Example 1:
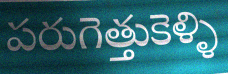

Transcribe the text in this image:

పరుగెత్తుకెళ్ళి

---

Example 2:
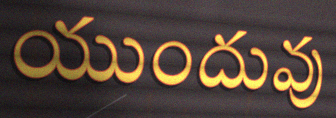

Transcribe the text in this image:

యుందువు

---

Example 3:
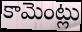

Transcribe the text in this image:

కామెంట్లు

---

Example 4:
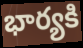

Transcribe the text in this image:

భార్యకి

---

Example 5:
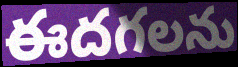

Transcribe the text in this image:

ఈదగలను